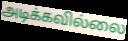
அடிக்கவில்லை